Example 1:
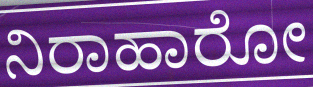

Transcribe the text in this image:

ನಿರಾಹಾರೋ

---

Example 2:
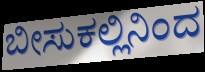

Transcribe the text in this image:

ಬೀಸುಕಲ್ಲಿನಿಂದ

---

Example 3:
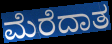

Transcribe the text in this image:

ಮೆರೆದಾತ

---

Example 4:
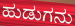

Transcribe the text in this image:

ಹುಡುಗನು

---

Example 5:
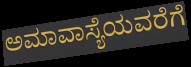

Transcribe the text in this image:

ಅಮಾವಾಸ್ಯೆಯವರೆಗೆ